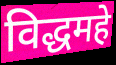
विद्धमहे